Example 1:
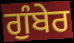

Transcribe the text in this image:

ਗੁੰਬੇਰ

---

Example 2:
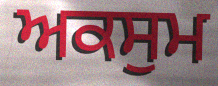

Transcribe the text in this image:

ਅਕਸੁਮ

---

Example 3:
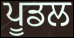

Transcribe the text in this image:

ਪੂਡਲ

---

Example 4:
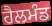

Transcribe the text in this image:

ਹੈਲਮੰਡ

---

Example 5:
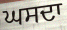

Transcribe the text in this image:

ਘਸਦਾ